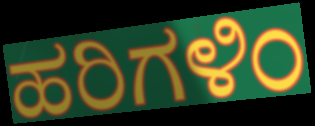
ಹರಿಗಳಿಂ